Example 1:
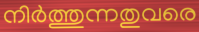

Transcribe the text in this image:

നിർത്തുന്നതുവരെ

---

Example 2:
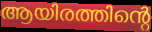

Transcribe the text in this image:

ആയിരത്തിന്റെ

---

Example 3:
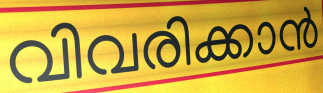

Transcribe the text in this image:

വിവരിക്കാൻ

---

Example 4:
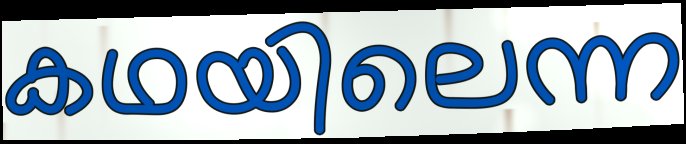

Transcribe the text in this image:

കഥയിലെന്ന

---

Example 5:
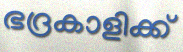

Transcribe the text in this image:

ഭദ്രകാളിക്ക്